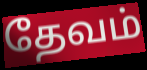
தேவம்